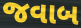
જવાબ